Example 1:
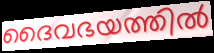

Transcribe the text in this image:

ദൈവഭയത്തിൽ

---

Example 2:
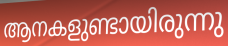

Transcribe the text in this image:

ആനകളുണ്ടായിരുന്നു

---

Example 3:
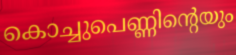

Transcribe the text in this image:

കൊച്ചുപെണ്ണിന്റെയും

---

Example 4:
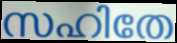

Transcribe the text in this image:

സഹിതേ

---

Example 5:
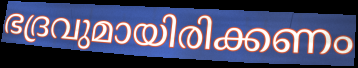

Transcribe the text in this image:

ഭദ്രവുമായിരിക്കണം